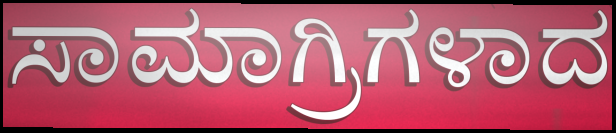
ಸಾಮಾಗ್ರಿಗಳಾದ